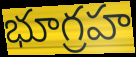
భూగ్రహ